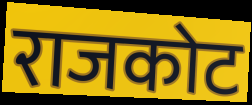
राजकोट